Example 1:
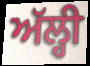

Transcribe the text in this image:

ਅੱਲ੍ਹੀ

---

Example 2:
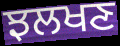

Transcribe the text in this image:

ਝਲਖਣ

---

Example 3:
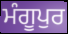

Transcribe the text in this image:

ਮੰਗੂਪੁਰ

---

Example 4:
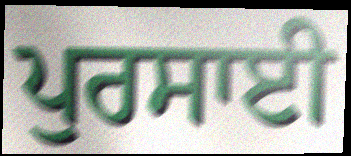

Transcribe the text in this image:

ਪੁਰਸਾਈ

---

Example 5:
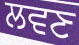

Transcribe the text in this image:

ਲਵਣ